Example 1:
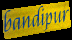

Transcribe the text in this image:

bandipur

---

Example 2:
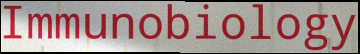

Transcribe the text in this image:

Immunobiology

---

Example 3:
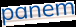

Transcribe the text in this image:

panem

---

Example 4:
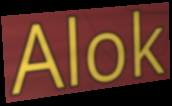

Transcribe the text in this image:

Alok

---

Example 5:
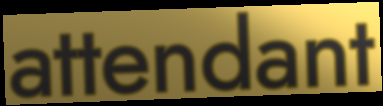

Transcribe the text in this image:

attendant